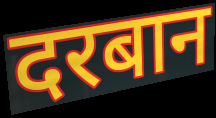
दरबान